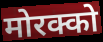
मोरक्को